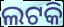
ଲଟକି